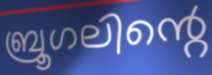
ബ്രൂഗലിന്റെ